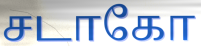
சடாகோ